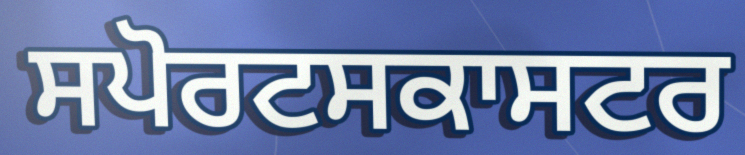
ਸਪੋਰਟਸਕਾਸਟਰ